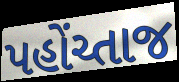
પહોંચ્તાજ